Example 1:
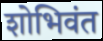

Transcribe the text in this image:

शोभिवंत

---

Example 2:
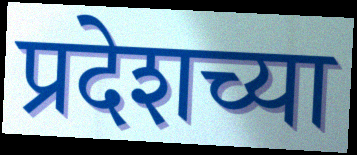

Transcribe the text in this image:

प्रदेशच्या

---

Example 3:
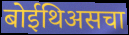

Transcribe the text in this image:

बोईथिअसचा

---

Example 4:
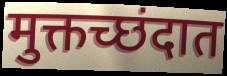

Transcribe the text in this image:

मुक्तच्छंदात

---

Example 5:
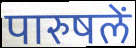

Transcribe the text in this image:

पारुषलें